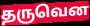
தருவென